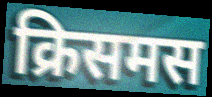
क्रिसमस